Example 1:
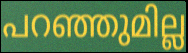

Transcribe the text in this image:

പറഞ്ഞുമില്ല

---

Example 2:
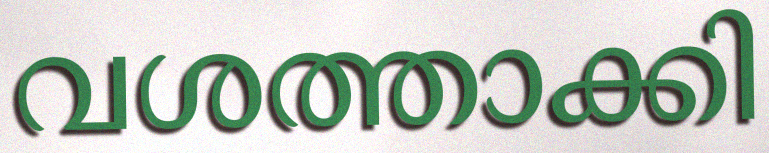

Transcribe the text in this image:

വശത്താക്കി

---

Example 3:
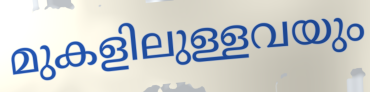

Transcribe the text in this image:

മുകളിലുള്ളവയും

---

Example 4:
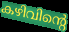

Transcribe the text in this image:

കഴിവിന്റെ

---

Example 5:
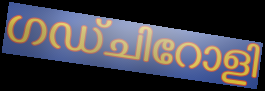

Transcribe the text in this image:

ഗഡ്ചിറോളി